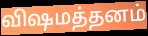
விஷமத்தனம்